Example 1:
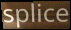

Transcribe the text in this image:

splice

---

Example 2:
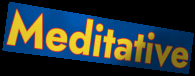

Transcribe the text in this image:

Meditative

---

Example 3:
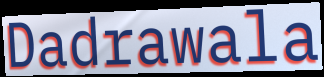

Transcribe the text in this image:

Dadrawala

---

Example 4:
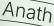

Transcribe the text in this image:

Anath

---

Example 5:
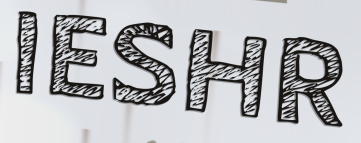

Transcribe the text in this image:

IESHR